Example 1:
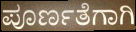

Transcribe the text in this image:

ಪೂರ್ಣತೆಗಾಗಿ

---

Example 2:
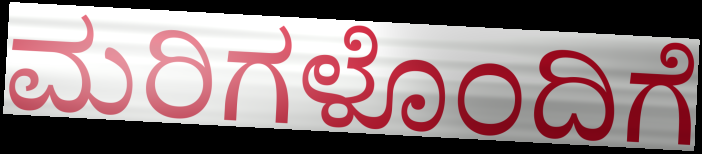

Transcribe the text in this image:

ಮರಿಗಳೊಂದಿಗೆ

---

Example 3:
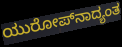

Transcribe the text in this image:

ಯುರೋಪ್‌ನಾದ್ಯಂತ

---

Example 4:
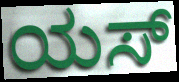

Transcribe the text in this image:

ಯಸ್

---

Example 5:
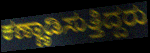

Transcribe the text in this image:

ಕಣ್ಣಾಡಿಸುತ್ತಿದ್ದರು